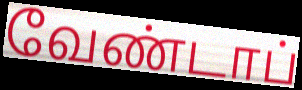
வேண்டாப்